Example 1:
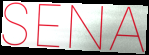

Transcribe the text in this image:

SENA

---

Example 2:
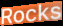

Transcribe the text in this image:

Rocks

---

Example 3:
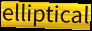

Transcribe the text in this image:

elliptical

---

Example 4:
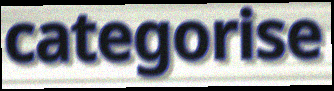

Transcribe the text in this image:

categorise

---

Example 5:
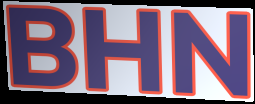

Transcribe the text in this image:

BHN